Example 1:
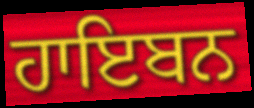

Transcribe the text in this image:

ਹਾਇਬਨ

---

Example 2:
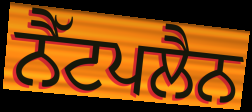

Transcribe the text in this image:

ਨੈੱਟਪਲੈਨ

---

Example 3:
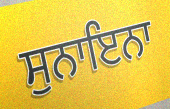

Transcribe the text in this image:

ਸੁਨਾਇਨਾ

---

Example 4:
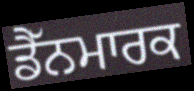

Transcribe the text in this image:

ਡੈੱਨਮਾਰਕ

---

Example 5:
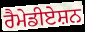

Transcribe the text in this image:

ਰੈਮੇਡੀਏਸ਼ਨ